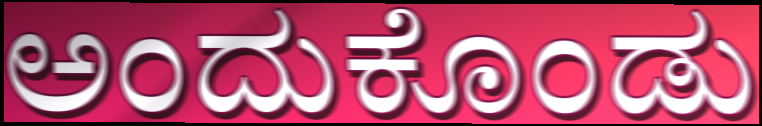
ಅಂದುಕೊಂಡು